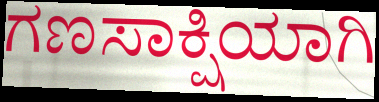
ಗಣಸಾಕ್ಷಿಯಾಗಿ